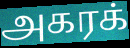
அகரக்